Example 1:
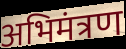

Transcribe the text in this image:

अभिमंत्रण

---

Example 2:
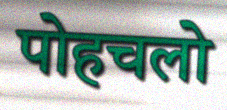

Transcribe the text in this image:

पोहचलो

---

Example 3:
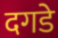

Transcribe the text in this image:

दगडे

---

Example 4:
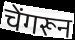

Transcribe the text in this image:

चेंगरून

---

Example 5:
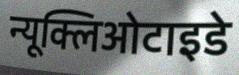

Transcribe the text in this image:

न्यूक्लिओटाइडे